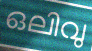
ഒലിവു